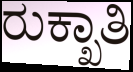
ರುಕ್ಖಾತಿ